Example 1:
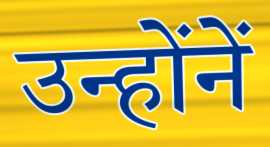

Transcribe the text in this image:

उन्होंनें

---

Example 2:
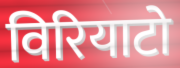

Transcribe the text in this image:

विरियाटो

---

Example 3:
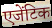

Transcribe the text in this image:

एजेंटिक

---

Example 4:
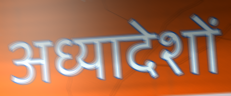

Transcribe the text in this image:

अध्यादेशों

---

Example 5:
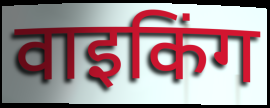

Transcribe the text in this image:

वाइकिंग